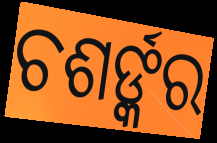
ଚଶର୍ଙ୍କର